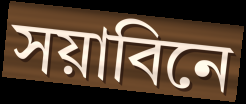
সয়াবিনে